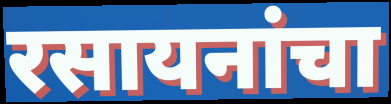
रसायनांचा